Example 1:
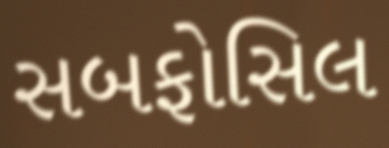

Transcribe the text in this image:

સબફોસિલ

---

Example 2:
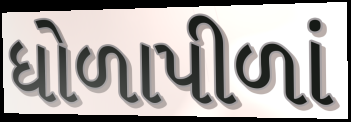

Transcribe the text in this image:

ધોળાપીળાં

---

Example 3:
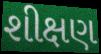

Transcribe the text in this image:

શીક્ષણ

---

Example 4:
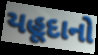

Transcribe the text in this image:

યહૂદાનો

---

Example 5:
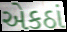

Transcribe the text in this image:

એકઠાં